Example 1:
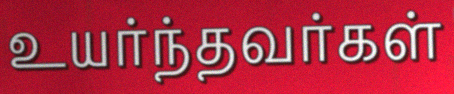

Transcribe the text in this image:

உயர்ந்தவர்கள்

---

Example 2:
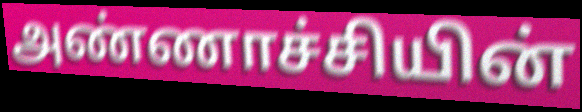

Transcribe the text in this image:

அண்ணாச்சியின்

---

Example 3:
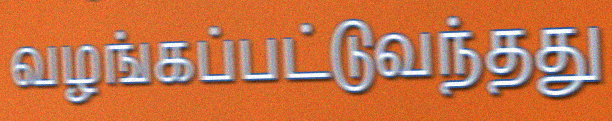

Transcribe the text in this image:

வழங்கப்பட்டுவந்தது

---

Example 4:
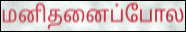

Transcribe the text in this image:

மனிதனைப்போல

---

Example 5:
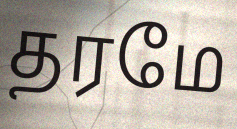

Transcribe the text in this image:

தரமே